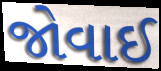
જોવાઈ